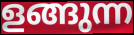
ളങ്ങുന്ന